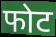
फोट